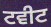
ਟਵੀਟ